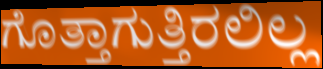
ಗೊತ್ತಾಗುತ್ತಿರಲಿಲ್ಲ